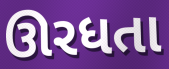
ઊરધતા